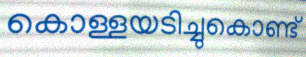
കൊള്ളയടിച്ചുകൊണ്ട്